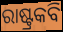
ରାଷ୍ଟ୍ରକବି